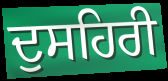
ਦੁਸਹਿਰੀ